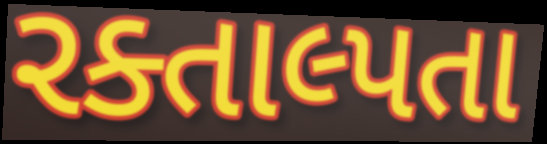
રક્તાલ્પતા